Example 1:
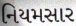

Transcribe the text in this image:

નિયમસાર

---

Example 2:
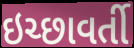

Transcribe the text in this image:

ઇચ્છાવર્તી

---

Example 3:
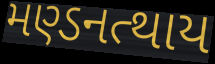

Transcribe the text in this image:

મણ્ડનત્થાય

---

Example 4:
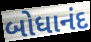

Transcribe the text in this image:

બોધાનંદ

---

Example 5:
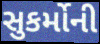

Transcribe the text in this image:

સુકર્મોની